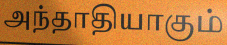
அந்தாதியாகும்